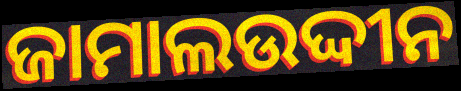
ଜାମାଲଉଦ୍ଦୀନ